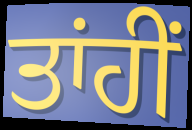
ਤਾਂਹੀਂ